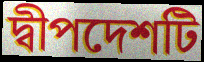
দ্বীপদেশটি